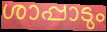
ശാപ്പാടും